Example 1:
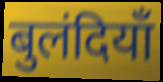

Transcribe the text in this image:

बुलंदियाँ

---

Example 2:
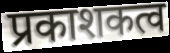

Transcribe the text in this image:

प्रकाशकत्व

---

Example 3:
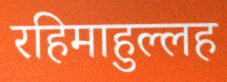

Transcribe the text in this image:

रहिमाहुल्लह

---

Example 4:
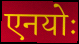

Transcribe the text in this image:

एनयोः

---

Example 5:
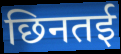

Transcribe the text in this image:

छिनतई